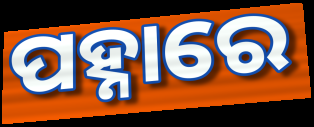
ପହ୍ନାରେ